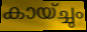
കായ്ച്ചും